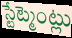
స్టేట్మెంట్లు